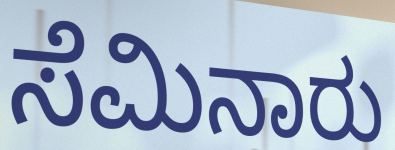
ಸೆಮಿನಾರು